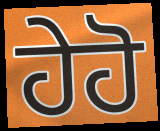
ਹੇਹੋ